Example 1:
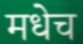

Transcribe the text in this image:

मधेच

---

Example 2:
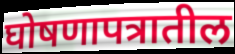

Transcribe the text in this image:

घोषणापत्रातील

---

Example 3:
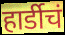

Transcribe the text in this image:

हार्डीचं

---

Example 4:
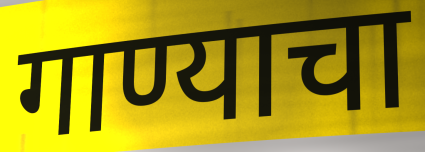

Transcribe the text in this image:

गाण्याचा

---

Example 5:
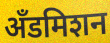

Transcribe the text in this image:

अँडमिशन